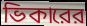
ভিকারের